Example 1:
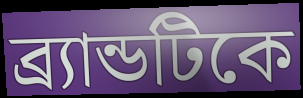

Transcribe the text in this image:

ব্র্যান্ডটিকে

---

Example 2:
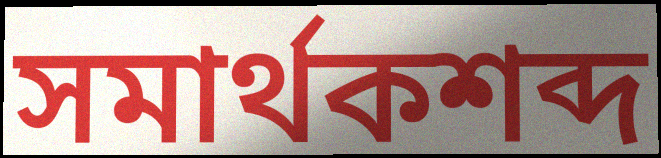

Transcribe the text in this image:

সমার্থকশব্দ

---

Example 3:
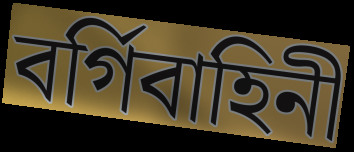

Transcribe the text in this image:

বর্গিবাহিনী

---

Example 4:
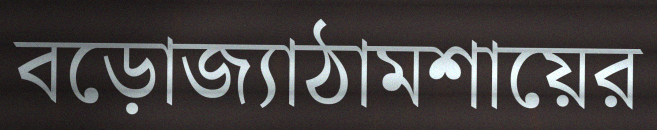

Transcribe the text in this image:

বড়োজ্যাঠামশায়ের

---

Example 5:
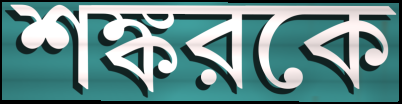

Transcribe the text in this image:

শঙ্করকে